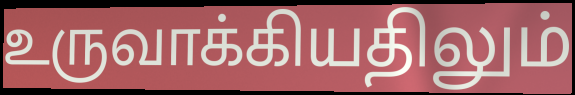
உருவாக்கியதிலும்